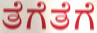
ತೆಗೆತೆಗೆ